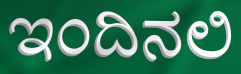
ಇಂದಿನಲಿ